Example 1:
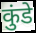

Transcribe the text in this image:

कुंडे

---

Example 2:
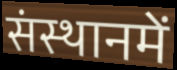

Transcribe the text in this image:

संस्थानमें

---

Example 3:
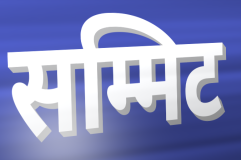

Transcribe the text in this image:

सम्मिट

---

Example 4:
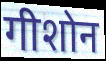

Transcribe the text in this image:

गीशोन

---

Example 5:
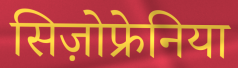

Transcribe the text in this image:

सिज़ोफ्रेनिया